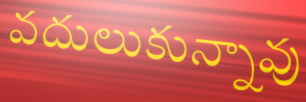
వదులుకున్నావు